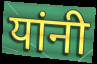
यांनी